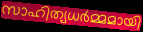
സാഹിത്യധർമ്മമായി